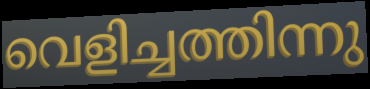
വെളിച്ചത്തിന്നു